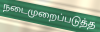
நடைமுறைப்படுத்த